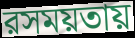
রসময়তায়